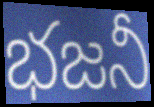
భజనీ